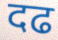
दढ